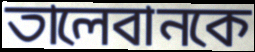
তালেবানকে